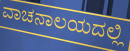
ವಾಚನಾಲಯದಲ್ಲಿ